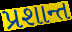
પ્રશાન્ત